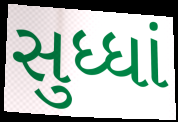
સુધ્ધાં